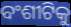
ବଂଶୀଟିକୁ